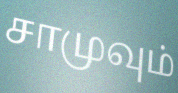
சாமுவும்